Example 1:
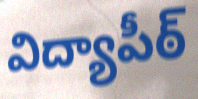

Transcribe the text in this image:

విద్యాపీఠ్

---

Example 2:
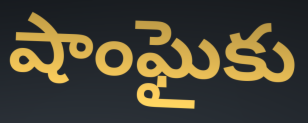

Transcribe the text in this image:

షాంఘైకు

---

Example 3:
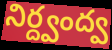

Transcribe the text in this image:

నిర్ద్వంద్వ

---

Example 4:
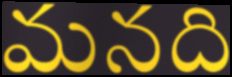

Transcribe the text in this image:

మనది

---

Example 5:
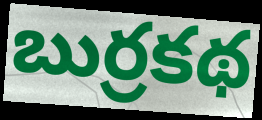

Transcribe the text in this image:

బుర్రకథ